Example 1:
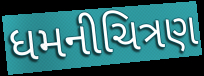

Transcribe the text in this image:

ધમનીચિત્રણ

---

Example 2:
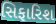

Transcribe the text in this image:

સિફારિશ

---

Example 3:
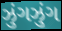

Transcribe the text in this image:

ઝુંગઝુંગ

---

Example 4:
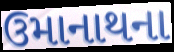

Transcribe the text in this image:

ઉમાનાથના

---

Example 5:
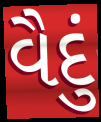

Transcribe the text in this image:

વૈદું